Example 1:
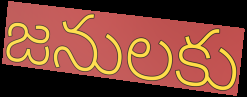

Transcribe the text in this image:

జనులకు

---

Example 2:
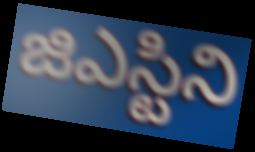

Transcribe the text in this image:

జిఎస్టిని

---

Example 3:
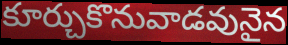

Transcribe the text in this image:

కూర్చుకొనువాడవునైన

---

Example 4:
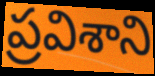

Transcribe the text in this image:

ప్రవిశాని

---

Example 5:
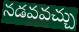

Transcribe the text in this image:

నడవవచ్చు